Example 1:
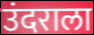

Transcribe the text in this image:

उंदराला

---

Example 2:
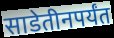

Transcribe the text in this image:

साडेतीनपर्यंत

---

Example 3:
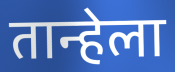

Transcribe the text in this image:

तान्हेला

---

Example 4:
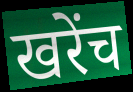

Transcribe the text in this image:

खरेंच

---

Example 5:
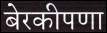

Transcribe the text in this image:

बेरकीपणा